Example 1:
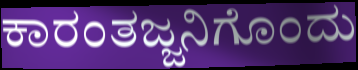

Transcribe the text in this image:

ಕಾರಂತಜ್ಜನಿಗೊಂದು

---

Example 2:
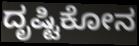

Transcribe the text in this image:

ದೃಷ್ಟಿಕೋನ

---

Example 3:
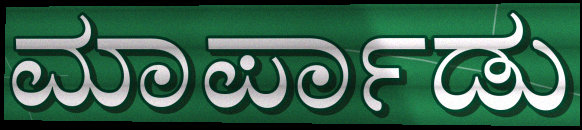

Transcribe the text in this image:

ಮಾರ್ಪಾಡು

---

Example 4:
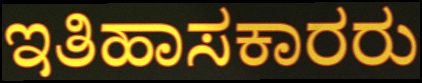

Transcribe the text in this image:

ಇತಿಹಾಸಕಾರರು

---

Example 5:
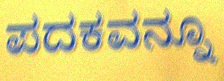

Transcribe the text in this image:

ಪದಕವನ್ನೂ